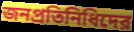
জনপ্রতিনিধিদের